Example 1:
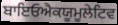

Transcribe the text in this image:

ਬਾਇਓਐਕਯੂਮੂਲੇਟਿਵ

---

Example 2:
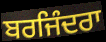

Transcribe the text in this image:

ਬਰਜਿੰਦਰਾ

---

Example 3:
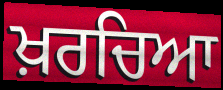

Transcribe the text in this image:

ਖ਼ਰਚਿਆ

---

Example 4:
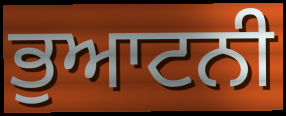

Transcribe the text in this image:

ਭੁਆਟਨੀ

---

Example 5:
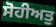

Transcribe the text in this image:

ਸੋਹੀਅਤੁ